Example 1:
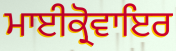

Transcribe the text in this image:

ਮਾਈਕ੍ਰੋਵਾਇਰ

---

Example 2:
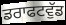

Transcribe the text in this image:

ਡਰਾਫਟਵੁੱਡ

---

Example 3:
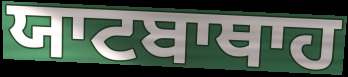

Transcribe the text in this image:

ਯਾਟਬਾਥਾਹ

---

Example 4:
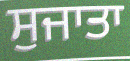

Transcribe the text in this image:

ਸੁਜਾਤਾ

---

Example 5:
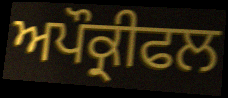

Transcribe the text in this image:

ਅਪੌਕ੍ਰੀਫਲ